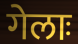
गेलाः